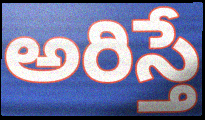
అరిస్తే